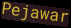
Pejawar